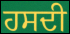
ਹਸਦੀ